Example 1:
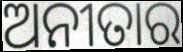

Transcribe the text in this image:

ଅନୀତାର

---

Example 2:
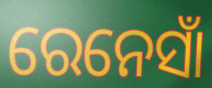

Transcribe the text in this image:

ରେନେସାଁ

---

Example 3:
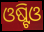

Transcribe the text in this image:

ଓଷ୍ଟିଓ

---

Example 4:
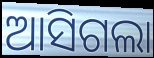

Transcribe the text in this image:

ଆସିଗଲା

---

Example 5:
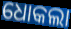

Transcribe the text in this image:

ଧୋକଲା